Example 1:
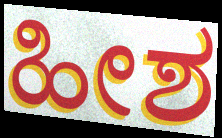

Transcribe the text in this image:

ಹೀಶ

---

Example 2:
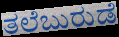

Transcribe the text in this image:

ತಲೆಬುರುಡೆ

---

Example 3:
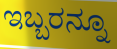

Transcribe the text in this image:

ಇಬ್ಬರನ್ನೂ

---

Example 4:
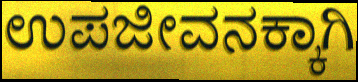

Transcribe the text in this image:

ಉಪಜೀವನಕ್ಕಾಗಿ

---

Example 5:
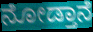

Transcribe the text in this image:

ನೋಡ್ತಾನೆ